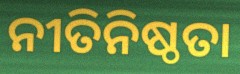
ନୀତିନିଷ୍ଠତା